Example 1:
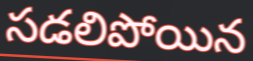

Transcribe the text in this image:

సడలిపోయిన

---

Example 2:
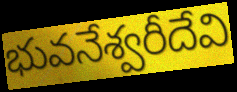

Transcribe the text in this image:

భువనేశ్వరీదేవి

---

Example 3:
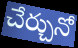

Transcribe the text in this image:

చేర్చునో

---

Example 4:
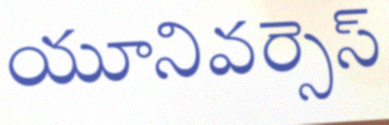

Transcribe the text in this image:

యూనివర్సెస్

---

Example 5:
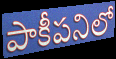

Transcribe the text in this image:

పాకీపనిలో